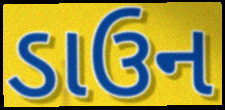
ડાઉન